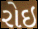
રોઇ